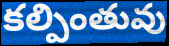
కల్పింతువు